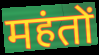
महंतों